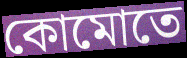
কোমোতে